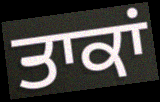
ਤਾਕਾਂ